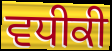
ਵਧੀਕੀ